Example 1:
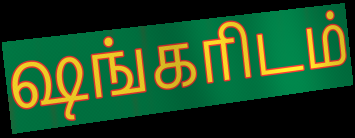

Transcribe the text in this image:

ஷங்கரிடம்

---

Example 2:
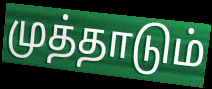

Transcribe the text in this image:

முத்தாடும்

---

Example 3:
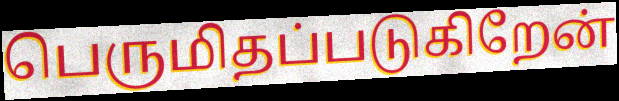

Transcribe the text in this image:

பெருமிதப்படுகிறேன்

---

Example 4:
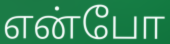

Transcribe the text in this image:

என்போ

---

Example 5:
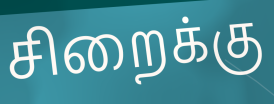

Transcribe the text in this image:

சிறைக்கு